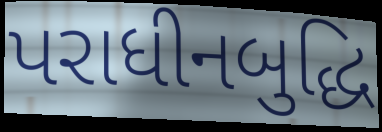
પરાધીનબુદ્ધિ